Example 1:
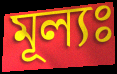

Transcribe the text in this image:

মূল্যঃ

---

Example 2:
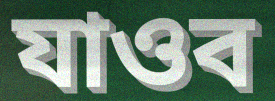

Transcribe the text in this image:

যাওব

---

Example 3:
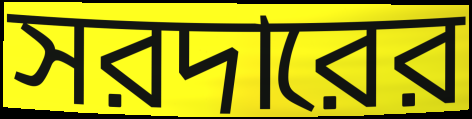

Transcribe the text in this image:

সরদারের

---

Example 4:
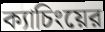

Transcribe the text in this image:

ক্যাচিংয়ের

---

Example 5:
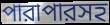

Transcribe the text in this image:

পারাপারসহ